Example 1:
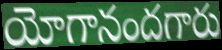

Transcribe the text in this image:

యోగానందగారు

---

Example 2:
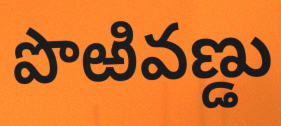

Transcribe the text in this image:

పొఱివణ్డు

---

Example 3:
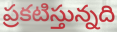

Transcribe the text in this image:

ప్రకటిస్తున్నది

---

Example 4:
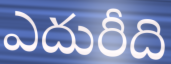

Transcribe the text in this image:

ఎదురీది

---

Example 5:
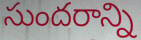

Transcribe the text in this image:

సుందరాన్ని